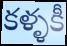
కళ్ళకీ